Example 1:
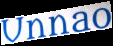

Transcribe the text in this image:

Unnao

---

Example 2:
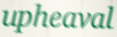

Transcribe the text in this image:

upheaval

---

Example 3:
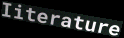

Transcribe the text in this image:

Iiterature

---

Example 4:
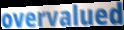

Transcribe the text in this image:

overvalued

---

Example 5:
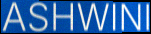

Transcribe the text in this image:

ASHWINI